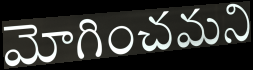
మోగించమని